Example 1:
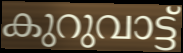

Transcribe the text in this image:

കുറുവാട്ട്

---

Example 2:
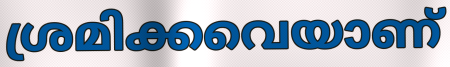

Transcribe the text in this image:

ശ്രമിക്കവെയാണ്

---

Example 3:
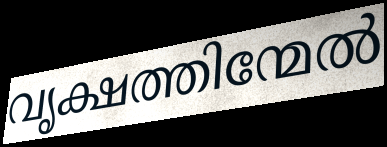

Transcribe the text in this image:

വൃക്ഷത്തിന്മേൽ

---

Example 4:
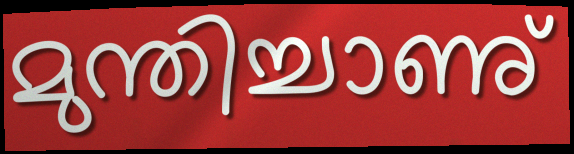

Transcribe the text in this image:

മുന്തിച്ചാണു്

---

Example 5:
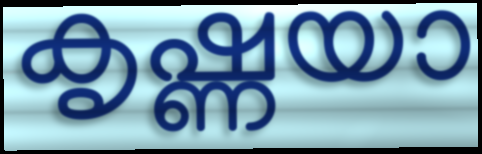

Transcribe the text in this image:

കൃഷ്ണയാ